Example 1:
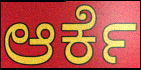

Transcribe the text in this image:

ಆರ್ಕೆ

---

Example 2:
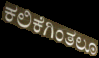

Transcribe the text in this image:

ಕಲಿಕೆಗಿಂತಲೂ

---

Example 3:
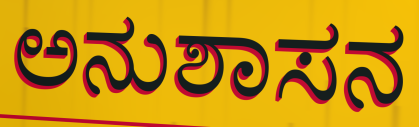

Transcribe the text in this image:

ಅನುಶಾಸನ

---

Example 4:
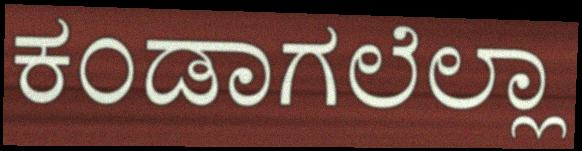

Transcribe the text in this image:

ಕಂಡಾಗಲೆಲ್ಲಾ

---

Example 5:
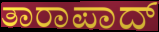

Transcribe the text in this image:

ತಾರಾಪಾದ್